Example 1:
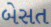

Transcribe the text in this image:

બેસત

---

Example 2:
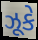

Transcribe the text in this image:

ઝૂકે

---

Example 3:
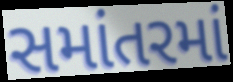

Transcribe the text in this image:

સમાંતરમાં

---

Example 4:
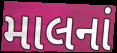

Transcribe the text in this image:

માલનાં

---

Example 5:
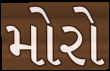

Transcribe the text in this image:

મોરો